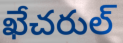
ఖేచరుల్